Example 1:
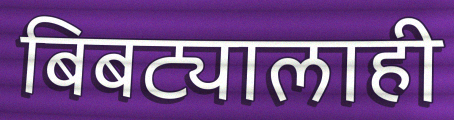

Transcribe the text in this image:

बिबट्यालाही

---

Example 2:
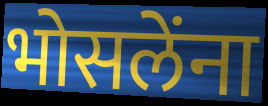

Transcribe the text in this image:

भोसलेंना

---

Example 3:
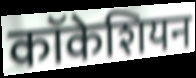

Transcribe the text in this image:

कॉकेशियन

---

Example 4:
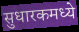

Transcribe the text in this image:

सुधारकमध्ये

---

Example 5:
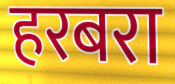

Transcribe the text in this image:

हरबरा